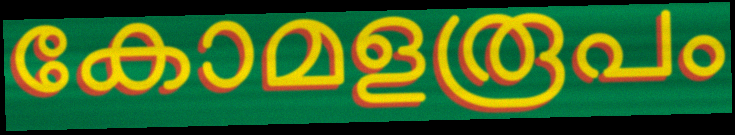
കോമളരൂപം